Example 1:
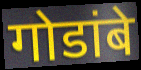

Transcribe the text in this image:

गोडांबे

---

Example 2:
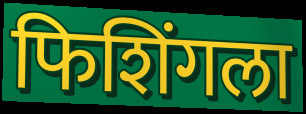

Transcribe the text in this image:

फिशिंगला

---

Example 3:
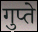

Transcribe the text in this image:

गुप्ते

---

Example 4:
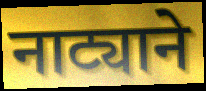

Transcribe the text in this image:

नाट्याने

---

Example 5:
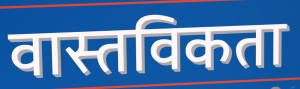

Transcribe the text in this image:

वास्तविकता